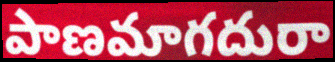
పాణమాగదురా